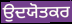
ਉਦਯੋਤਕਰ